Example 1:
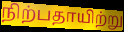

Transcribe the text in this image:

நிற்பதாயிற்று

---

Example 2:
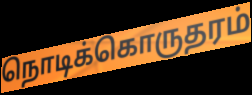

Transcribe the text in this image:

நொடிக்கொருதரம்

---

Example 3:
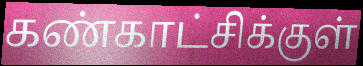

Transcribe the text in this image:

கண்காட்சிக்குள்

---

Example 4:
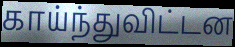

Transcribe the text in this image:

காய்ந்துவிட்டன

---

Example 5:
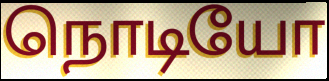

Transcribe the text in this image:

நொடியோ